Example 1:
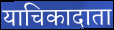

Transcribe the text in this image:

याचिकादाता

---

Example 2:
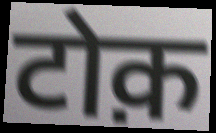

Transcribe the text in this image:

टोक़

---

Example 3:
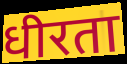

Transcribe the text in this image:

धीरता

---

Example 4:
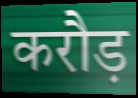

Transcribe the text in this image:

करौड़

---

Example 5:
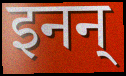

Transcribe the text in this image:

इनन्